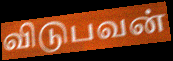
விடுபவன்